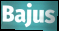
Bajus